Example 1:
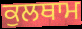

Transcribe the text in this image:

ਕੁਲਥਾਮ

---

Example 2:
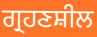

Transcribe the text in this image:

ਗ੍ਰਹਣਸ਼ੀਲ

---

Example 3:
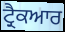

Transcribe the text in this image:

ਟ੍ਰੈਕਆਰ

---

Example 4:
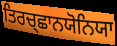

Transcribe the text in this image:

ਤਿਰਚ੍ਛਾਨਯੋਨਿਯਾ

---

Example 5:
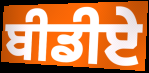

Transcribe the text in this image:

ਬੀਡੀਏ